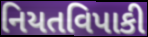
નિયતવિપાકી